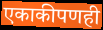
एकाकीपणही